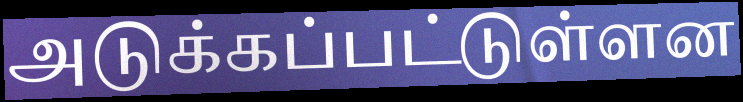
அடுக்கப்பட்டுள்ளன